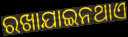
ରଖାଯାଇନଥାଏ